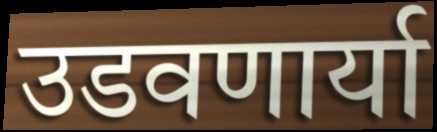
उडवणार्या